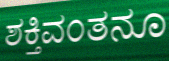
ಶಕ್ತಿವಂತನೂ